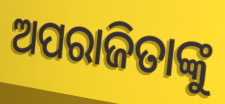
ଅପରାଜିତାଙ୍କୁ